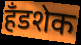
हँडशेक